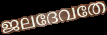
ജലദേവതേ